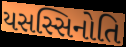
યસસ્સિનોતિ